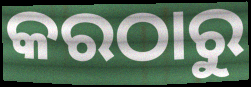
କରଠାରୁ